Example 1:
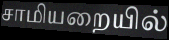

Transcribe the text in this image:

சாமியறையில்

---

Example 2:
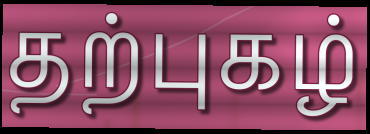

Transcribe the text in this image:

தற்புகழ்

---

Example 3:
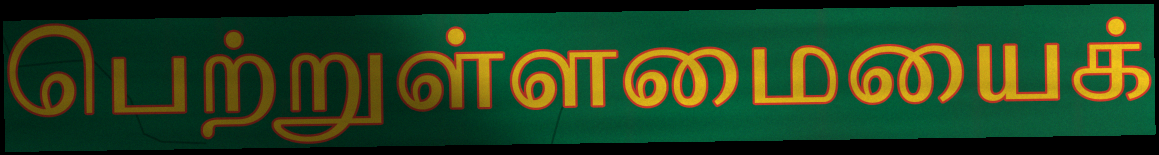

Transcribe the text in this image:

பெற்றுள்ளமையைக்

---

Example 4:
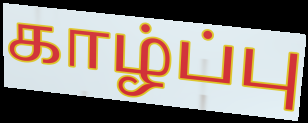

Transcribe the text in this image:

காழ்ப்பு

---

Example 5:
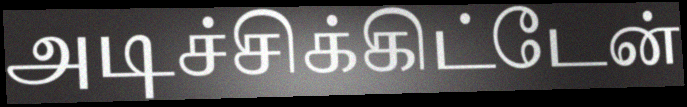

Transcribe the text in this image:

அடிச்சிக்கிட்டேன்